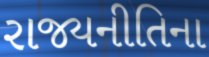
રાજ્યનીતિના